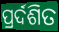
ପ୍ରର୍ଦଶିତ